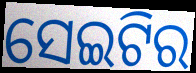
ସେଇଟିର